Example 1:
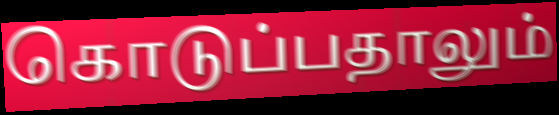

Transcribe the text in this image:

கொடுப்பதாலும்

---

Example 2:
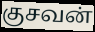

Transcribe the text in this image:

குசவன்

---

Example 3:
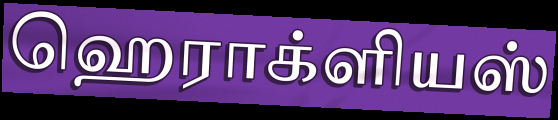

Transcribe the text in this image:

ஹெராக்ளியஸ்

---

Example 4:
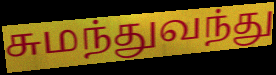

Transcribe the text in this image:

சுமந்துவந்து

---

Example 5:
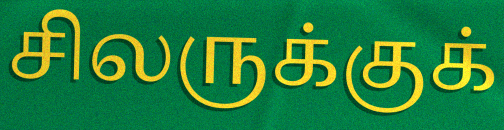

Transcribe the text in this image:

சிலருக்குக்